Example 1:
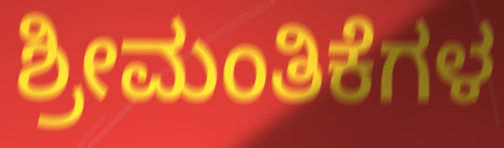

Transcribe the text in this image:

ಶ್ರೀಮಂತಿಕೆಗಳ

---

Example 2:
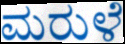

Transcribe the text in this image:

ಮರುಳೆ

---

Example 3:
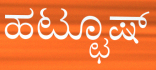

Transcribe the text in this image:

ಹಟ್ಟೂಷ್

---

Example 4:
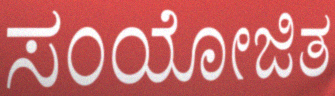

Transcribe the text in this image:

ಸಂಯೋಜಿತ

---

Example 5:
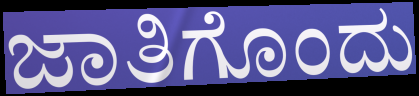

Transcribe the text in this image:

ಜಾತಿಗೊಂದು